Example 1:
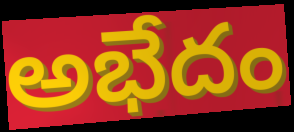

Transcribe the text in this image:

అభేదం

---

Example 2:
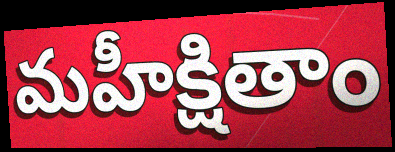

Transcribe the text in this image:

మహీక్షితాం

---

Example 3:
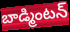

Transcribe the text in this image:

బాడ్మింటన్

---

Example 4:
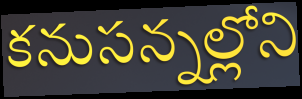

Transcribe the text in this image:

కనుసన్నల్లోని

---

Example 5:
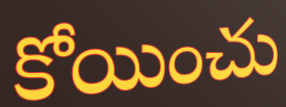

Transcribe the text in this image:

కోయించు